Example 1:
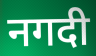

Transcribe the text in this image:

नगदी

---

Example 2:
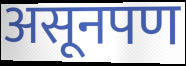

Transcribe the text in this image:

असूनपण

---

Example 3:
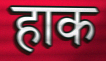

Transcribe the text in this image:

हाक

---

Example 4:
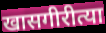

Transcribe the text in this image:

खासगीरीत्या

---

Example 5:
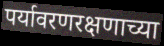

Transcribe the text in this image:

पर्यावरणरक्षणाच्या